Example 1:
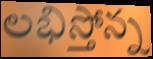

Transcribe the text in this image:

లభిస్తోన్న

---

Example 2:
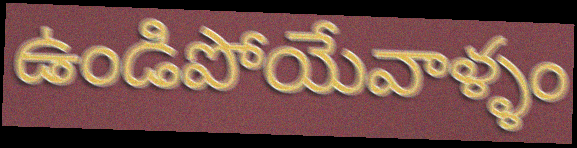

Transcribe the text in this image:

ఉండిపోయేవాళ్ళం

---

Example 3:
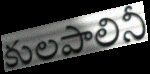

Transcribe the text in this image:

కులపాలినీ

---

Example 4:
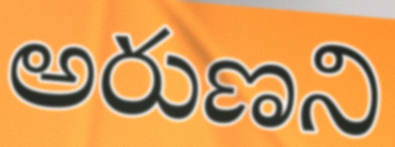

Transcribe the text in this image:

అరుణని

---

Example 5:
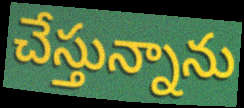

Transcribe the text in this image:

చేస్తున్నాను